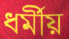
ধৰ্মীয়